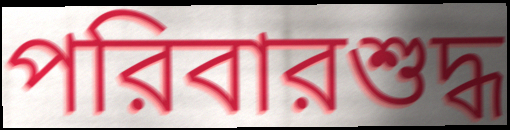
পরিবারশুদ্ধ